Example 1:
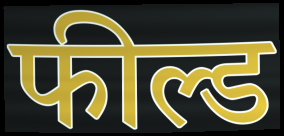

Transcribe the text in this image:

फील्ड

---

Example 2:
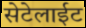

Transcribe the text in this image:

सेटेलाईट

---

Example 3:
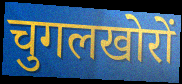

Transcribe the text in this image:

चुगलखोरों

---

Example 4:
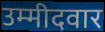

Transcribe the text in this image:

उम्मीदवार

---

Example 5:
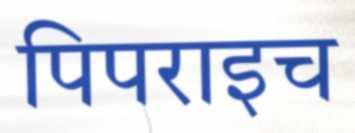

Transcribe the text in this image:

पिपराइच